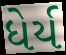
ધેર્ય